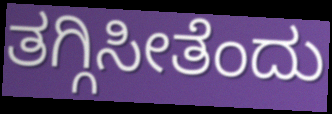
ತಗ್ಗಿಸೀತೆಂದು